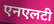
एनएलटी